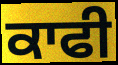
ਕਾਫੀ